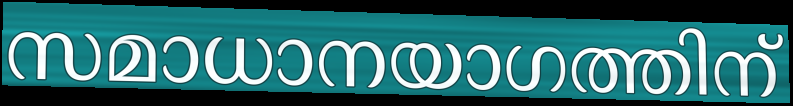
സമാധാനയാഗത്തിന്